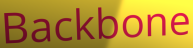
Backbone